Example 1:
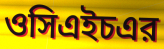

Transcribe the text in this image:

ওসিএইচএর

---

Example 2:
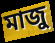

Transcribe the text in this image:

মাজু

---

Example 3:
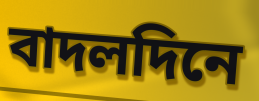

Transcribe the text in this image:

বাদলদিনে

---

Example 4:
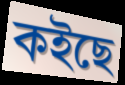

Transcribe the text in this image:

কইছে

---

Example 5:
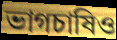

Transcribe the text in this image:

ভাগচাষিও